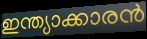
ഇന്ത്യാക്കാരൻ